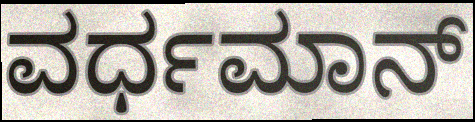
ವರ್ಧಮಾನ್